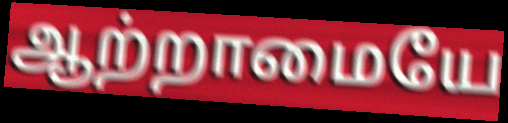
ஆற்றாமையே